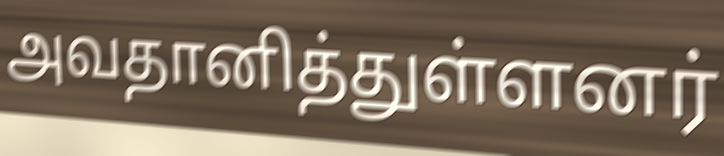
அவதானித்துள்ளனர்